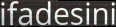
ifadesini